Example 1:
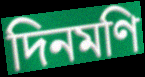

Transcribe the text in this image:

দিনমণি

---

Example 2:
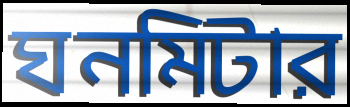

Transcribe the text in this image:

ঘনমিটার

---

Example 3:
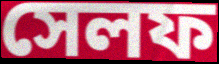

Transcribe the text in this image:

সেলফ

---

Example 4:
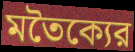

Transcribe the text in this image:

মতৈক্যের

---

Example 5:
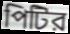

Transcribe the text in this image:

পিটির